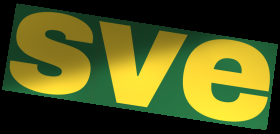
sve